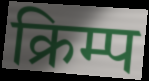
क्रिम्प